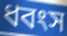
ধবংস